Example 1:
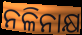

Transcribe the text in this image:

ନଳିନାକ୍ଷ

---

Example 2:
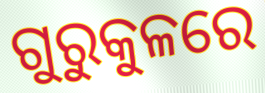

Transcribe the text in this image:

ଗୁରୁକୁଳରେ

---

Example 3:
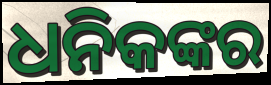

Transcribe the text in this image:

ଧନିକଙ୍କର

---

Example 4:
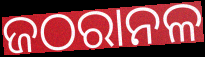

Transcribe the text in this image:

ଜଠରାନଳ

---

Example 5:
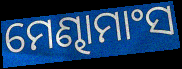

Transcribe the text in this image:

ମେଣ୍ଢାମାଂସ